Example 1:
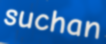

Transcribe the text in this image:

suchan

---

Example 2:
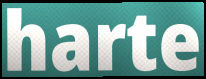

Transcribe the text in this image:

harte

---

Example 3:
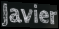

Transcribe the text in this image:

Javier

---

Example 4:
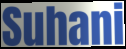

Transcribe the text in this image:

Suhani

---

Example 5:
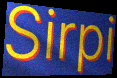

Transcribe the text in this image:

Sirpi